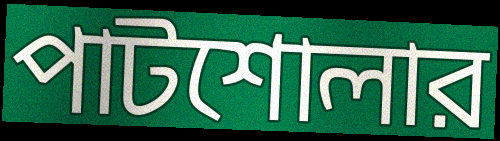
পাটশোলার